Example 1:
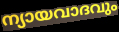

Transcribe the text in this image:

ന്യായവാദവും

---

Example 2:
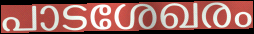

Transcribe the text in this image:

പാടശേഖരം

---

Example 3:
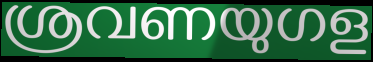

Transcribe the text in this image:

ശ്രവണയുഗള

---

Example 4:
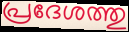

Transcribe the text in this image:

പ്രദേശത്തു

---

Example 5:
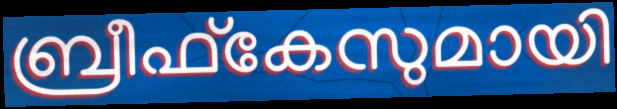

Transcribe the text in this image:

ബ്രീഫ്കേസുമായി